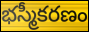
భస్మీకరణం